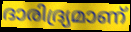
ദാരിദ്ര്യമാണ്